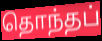
தொந்தப்